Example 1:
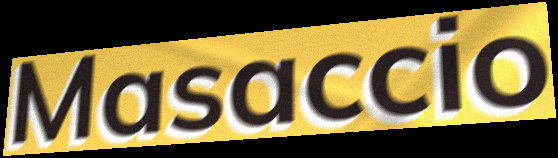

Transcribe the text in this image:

Masaccio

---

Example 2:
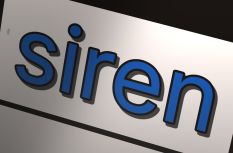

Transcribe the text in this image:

siren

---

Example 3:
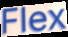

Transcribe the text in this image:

Flex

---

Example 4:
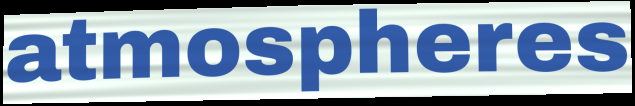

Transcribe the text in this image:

atmospheres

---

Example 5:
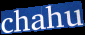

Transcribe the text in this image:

chahu